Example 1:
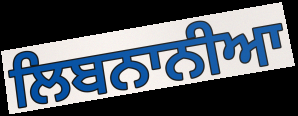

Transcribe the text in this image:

ਲਿਬਨਾਨੀਆ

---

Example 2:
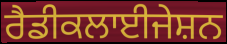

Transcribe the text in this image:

ਰੈਡੀਕਲਾਈਜੇਸ਼ਨ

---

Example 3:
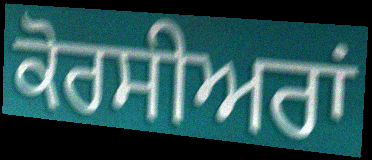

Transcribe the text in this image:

ਕੋਰਸੀਅਰਾਂ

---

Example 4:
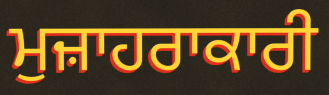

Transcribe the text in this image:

ਮੁਜ਼ਾਹਰਾਕਾਰੀ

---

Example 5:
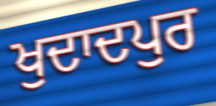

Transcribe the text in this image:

ਖੁਦਾਦਪੁਰ